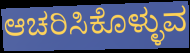
ಆಚರಿಸಿಕೊಳ್ಳುವ